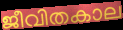
ജീവിതകാല